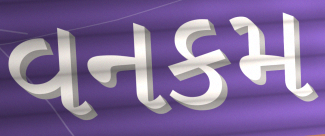
વનકમ